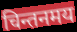
चिन्तनमय